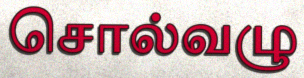
சொல்வழு